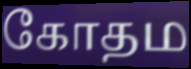
கோதம